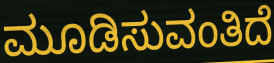
ಮೂಡಿಸುವಂತಿದೆ